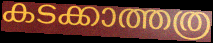
കടക്കാത്തത്ര